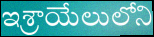
ఇశ్రాయేలులోని